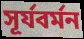
সূর্যবর্মন